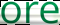
ore